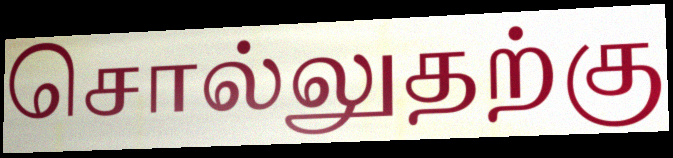
சொல்லுதற்கு